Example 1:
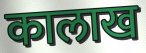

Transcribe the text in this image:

कालाख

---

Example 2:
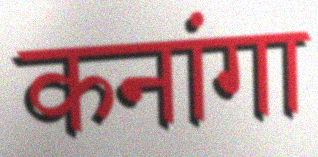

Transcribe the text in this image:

कनांगा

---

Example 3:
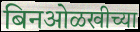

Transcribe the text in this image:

बिनओळखीच्या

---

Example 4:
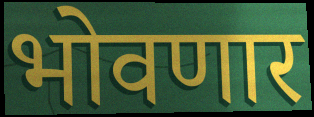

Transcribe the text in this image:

भोवणार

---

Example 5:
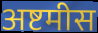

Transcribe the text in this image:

अष्टमीस